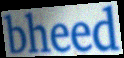
bheed